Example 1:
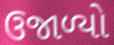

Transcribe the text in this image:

ઉજાળ્યો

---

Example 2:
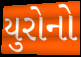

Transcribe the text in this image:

યુરોનો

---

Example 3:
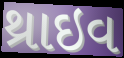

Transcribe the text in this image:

થ્રાઇવ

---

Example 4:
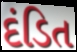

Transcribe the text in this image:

દંડિત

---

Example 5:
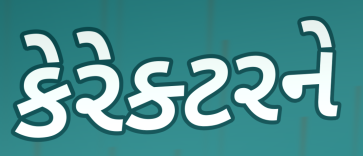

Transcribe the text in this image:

કેરેક્ટરને